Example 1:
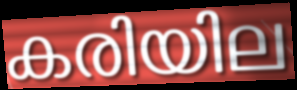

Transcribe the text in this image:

കരിയില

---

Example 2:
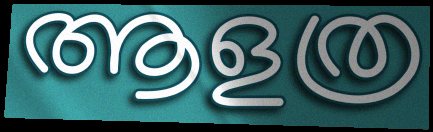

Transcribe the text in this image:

ആളത്ര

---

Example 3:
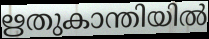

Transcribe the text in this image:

ഋതുകാന്തിയിൽ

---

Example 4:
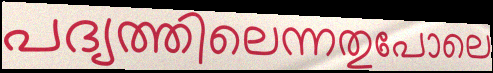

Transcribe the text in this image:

പദ്യത്തിലെന്നതുപോലെ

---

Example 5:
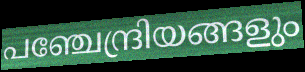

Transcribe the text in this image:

പഞ്ചേന്ദ്രിയങ്ങളും